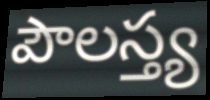
పౌలస్త్య